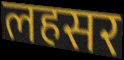
लहसर